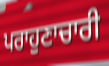
ਪਰਾਹੁਣਾਚਾਰੀ